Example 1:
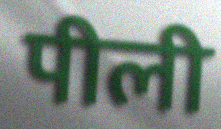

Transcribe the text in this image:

पीली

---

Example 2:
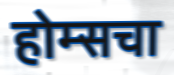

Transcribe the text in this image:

होम्सचा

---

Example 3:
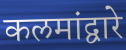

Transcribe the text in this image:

कलमांद्वारे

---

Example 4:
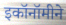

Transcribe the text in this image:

इकॉनॉमीने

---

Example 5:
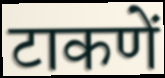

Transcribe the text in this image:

टाकणें